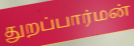
துறப்பார்மன்